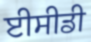
ਈਸੀਡੀ